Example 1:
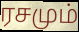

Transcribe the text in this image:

ரசமும்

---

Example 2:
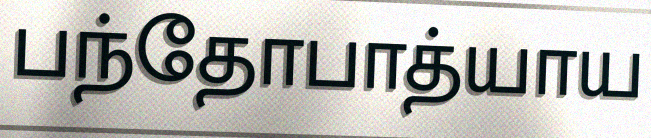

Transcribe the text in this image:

பந்தோபாத்யாய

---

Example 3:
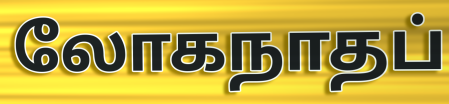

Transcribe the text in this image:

லோகநாதப்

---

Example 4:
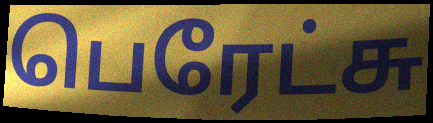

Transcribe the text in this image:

பெரேட்சு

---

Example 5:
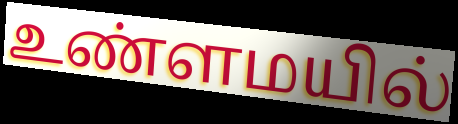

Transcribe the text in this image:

உண்ளமயில்